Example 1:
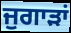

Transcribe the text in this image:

ਜੁਗਾੜਾਂ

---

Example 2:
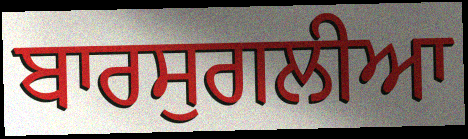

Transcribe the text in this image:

ਬਾਰਸੁਗਲੀਆ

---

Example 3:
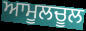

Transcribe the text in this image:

ਆਮੂਲਚੂਲ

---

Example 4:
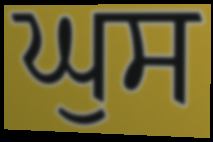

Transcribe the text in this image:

ਘੁਸ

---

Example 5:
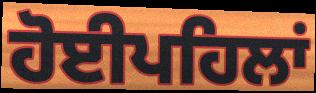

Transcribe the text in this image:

ਹੋਈਪਹਿਲਾਂ